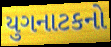
યુગનાટકનો